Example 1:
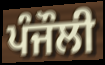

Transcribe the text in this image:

ਪੰਜੌਲੀ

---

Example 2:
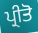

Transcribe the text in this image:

ਪ੍ਰੀਤੋ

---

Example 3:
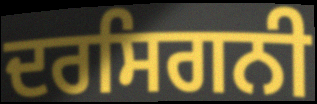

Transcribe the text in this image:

ਦਰਸਿਗਨੀ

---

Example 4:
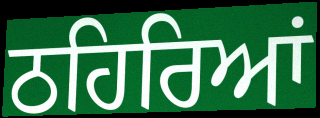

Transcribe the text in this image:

ਠਹਿਰਿਆਂ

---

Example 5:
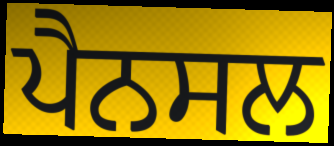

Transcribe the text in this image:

ਪੈਨਸਲ